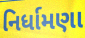
નિર્ધામણા